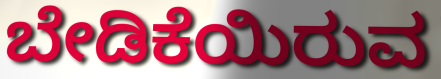
ಬೇಡಿಕೆಯಿರುವ